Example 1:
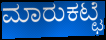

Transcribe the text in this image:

ಮಾರುಕಟ್ಟೆ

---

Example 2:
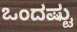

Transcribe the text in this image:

ಒಂದಷ್ಟು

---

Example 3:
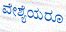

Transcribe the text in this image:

ವೇಶ್ಯೆಯರೂ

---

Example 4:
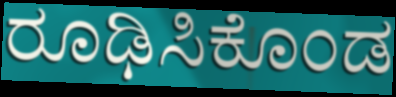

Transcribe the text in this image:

ರೂಢಿಸಿಕೊಂಡ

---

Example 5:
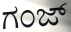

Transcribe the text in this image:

ಗಂಜ್